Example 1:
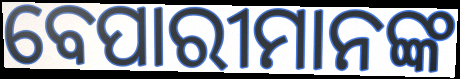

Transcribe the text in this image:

ବେପାରୀମାନଙ୍କ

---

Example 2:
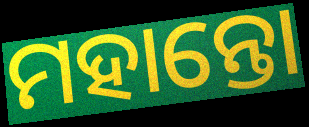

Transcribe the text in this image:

ମହାନ୍ତୋ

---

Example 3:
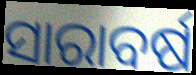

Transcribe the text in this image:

ସାରାବର୍ଷ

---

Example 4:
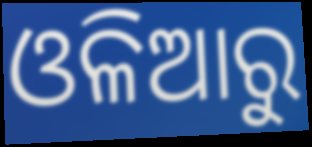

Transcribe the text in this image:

ଓଳିଆରୁ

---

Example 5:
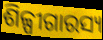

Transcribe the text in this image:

ଶିଳ୍ପୀଗାରସ୍ୟ